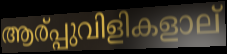
ആര്പ്പുവിളികളാല്